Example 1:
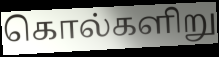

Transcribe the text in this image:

கொல்களிறு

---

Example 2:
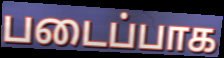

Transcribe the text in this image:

படைப்பாக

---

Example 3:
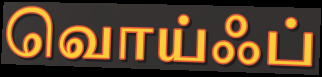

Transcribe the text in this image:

வொய்ஃப்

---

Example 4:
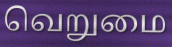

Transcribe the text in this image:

வெறுமை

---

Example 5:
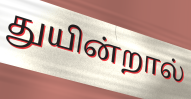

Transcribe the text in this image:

துயின்றால்